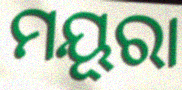
ମୟୂରା